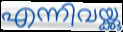
എന്നിവയ്ക്കു